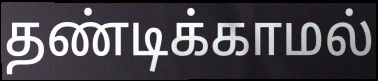
தண்டிக்காமல்